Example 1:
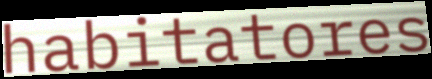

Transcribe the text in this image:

habitatores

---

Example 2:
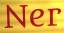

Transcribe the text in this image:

Ner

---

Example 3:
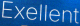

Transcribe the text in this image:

Exellent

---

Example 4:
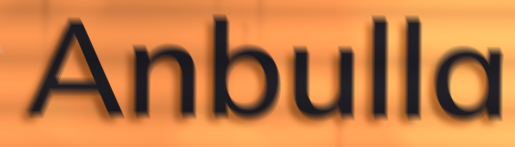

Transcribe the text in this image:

Anbulla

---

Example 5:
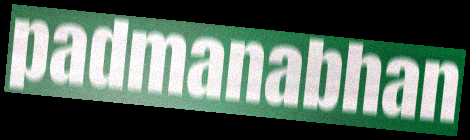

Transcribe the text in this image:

padmanabhan